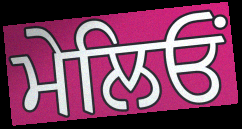
ਮੇਲਿਓਂ